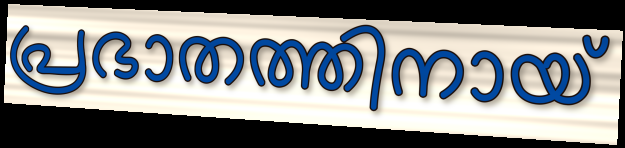
പ്രഭാതത്തിനായ്